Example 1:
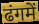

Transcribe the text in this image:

ढंगमें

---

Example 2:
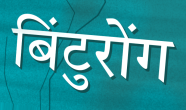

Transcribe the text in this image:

बिंटुरोंग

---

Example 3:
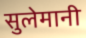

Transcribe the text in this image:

सुलेमानी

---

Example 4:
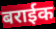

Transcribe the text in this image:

बराईक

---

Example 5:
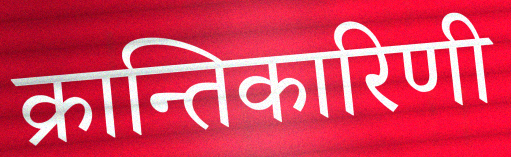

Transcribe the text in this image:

क्रान्तिकारिणी